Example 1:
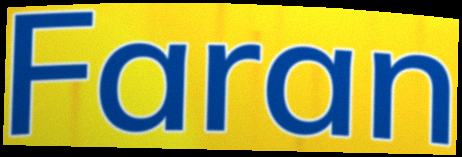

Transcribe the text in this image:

Faran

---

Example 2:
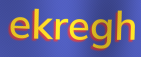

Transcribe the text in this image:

ekregh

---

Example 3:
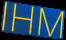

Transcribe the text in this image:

IHM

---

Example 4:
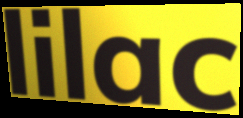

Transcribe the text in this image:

lilac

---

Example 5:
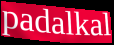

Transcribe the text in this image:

padalkal